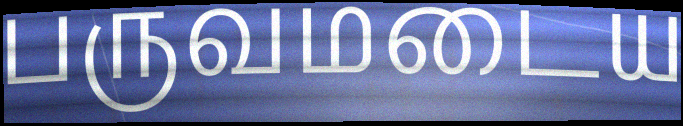
பருவமடைய